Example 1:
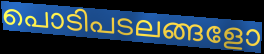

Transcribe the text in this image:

പൊടിപടലങ്ങളോ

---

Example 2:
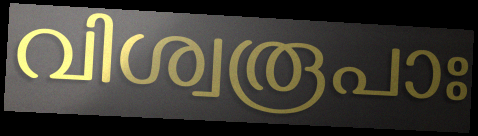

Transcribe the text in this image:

വിശ്വരൂപാഃ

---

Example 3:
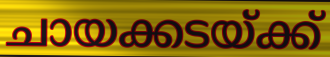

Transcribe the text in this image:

ചായക്കടയ്ക്ക്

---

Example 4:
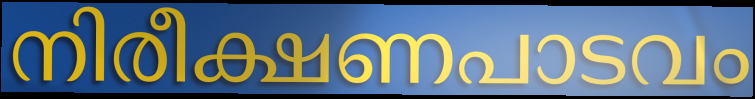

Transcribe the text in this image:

നിരീക്ഷണപാടവം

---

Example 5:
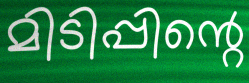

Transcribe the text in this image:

മിടിപ്പിന്റെ